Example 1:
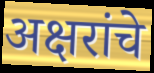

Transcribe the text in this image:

अक्षरांचे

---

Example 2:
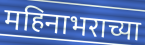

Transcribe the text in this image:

महिनाभराच्या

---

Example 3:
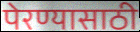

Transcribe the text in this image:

पेरण्यासाठी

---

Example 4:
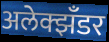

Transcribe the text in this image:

अलेक्झँडर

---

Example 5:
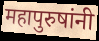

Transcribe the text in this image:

महापुरुषांनी